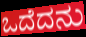
ಒದೆದನು